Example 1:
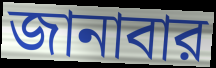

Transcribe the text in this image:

জানাবার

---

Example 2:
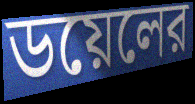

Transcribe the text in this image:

ডয়েলের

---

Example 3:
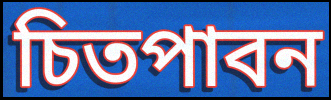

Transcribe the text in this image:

চিতপাবন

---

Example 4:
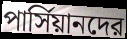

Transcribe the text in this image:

পার্সিয়ানদের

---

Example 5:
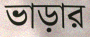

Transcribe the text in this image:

ভাড়ার